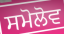
ਸਮੋਲੋਵ